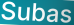
Subas